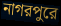
নাগরপুরে